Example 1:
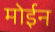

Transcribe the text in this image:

मोईन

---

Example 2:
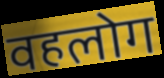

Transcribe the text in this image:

वहलोग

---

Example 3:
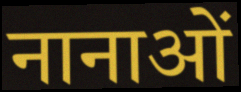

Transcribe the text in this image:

नानाओं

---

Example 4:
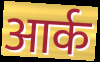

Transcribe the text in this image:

आर्क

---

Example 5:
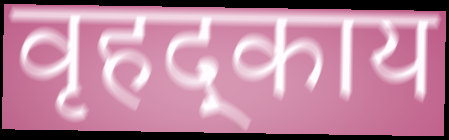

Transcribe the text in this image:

वृहद्काय